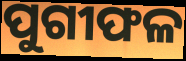
ପୁଗୀଫଳ